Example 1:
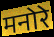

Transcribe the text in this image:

मनोरे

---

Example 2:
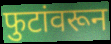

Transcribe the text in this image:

फुटांवरून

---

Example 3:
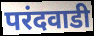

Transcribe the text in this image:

परंदवाडी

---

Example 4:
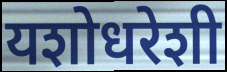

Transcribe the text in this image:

यशोधरेशी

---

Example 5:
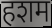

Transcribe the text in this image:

हशम